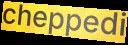
cheppedi